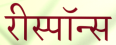
रीस्पॉन्स